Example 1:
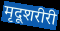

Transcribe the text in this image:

मृदूशरीरी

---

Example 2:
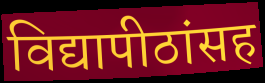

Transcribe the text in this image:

विद्यापीठांसह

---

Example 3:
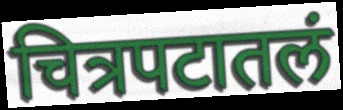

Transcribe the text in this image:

चित्रपटातलं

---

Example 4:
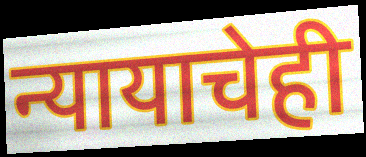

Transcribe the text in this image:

न्यायाचेही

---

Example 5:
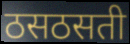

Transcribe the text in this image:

ठसठसती